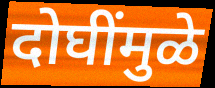
दोघींमुळे